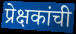
प्रेक्षकांची